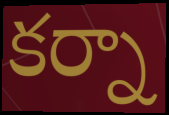
కర్నా